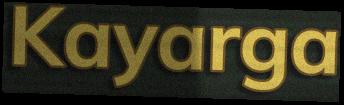
Kayarga